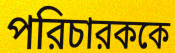
পরিচারককে